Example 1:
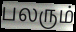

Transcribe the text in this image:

பலரும்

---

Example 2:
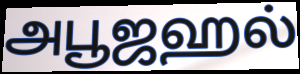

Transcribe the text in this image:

அபூஜஹல்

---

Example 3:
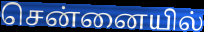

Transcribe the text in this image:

சென்னையில்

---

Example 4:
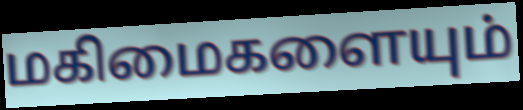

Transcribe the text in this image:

மகிமைகளையும்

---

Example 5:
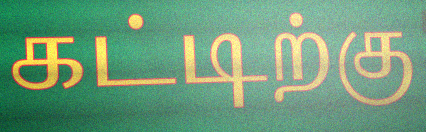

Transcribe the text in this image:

கட்டிற்கு